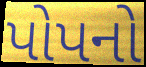
પોપનો